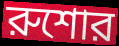
রুশোর